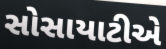
સોસાયાટીએ